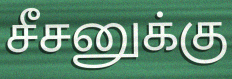
சீசனுக்கு